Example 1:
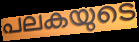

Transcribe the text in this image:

പലകയുടെ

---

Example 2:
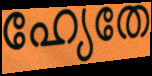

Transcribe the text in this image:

ഹ്യേതേ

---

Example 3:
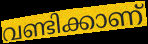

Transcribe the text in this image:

വണ്ടിക്കാണ്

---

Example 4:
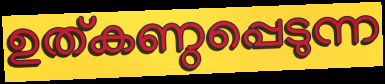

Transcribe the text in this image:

ഉത്കണ്ഠപ്പെടുന്ന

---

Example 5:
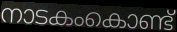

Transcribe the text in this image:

നാടകംകൊണ്ട്